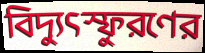
বিদ্যুৎস্ফুরণের